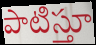
పాటిస్తూ